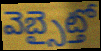
వెబ్సైట్తో